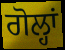
ਗੋਲ੍ਹਾਂ